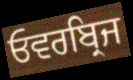
ਓਵਰਬ੍ਰਿਜ